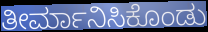
ತೀರ್ಮಾನಿಸಿಕೊಂಡು